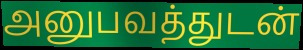
அனுபவத்துடன்